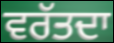
ਵਰੱਤਦਾ